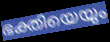
ഭക്തിയെയും